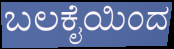
ಬಲಕೈಯಿಂದ